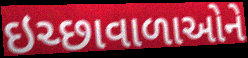
ઇચ્છાવાળાઓને